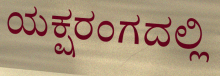
ಯಕ್ಷರಂಗದಲ್ಲಿ